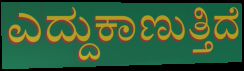
ಎದ್ದುಕಾಣುತ್ತಿದೆ